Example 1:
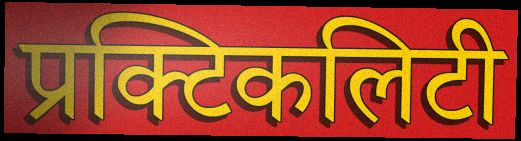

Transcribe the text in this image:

प्रक्टिकलिटी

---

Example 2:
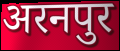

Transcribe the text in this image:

अरनपुर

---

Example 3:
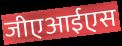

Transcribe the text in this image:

जीएआईएस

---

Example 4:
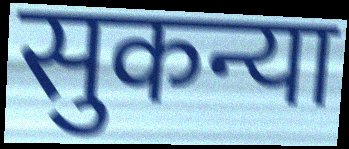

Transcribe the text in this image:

सुकन्या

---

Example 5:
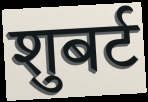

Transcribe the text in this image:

शुबर्ट